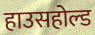
हाउसहोल्ड